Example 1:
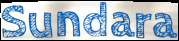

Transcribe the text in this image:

Sundara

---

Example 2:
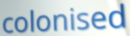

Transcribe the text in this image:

colonised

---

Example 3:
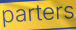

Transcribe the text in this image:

parters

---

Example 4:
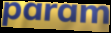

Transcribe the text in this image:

param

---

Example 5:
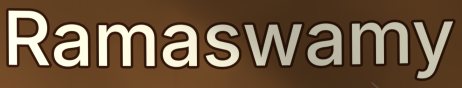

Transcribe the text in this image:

Ramaswamy